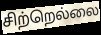
சிற்றெல்லை